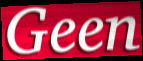
Geen